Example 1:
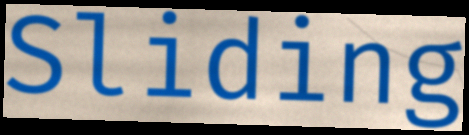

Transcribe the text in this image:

Sliding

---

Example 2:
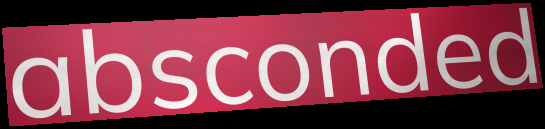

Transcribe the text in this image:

absconded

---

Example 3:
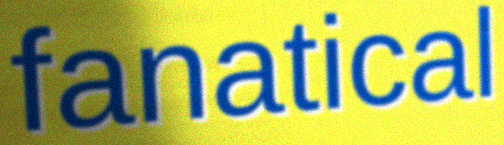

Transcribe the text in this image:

fanatical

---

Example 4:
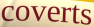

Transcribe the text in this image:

coverts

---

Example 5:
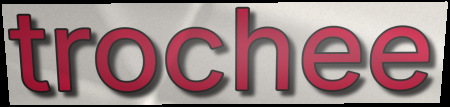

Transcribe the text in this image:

trochee